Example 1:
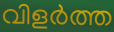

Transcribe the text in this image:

വിളർത്ത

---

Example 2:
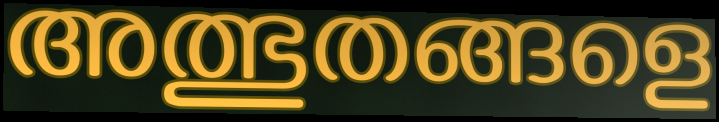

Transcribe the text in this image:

അത്ഭുതങ്ങളെ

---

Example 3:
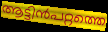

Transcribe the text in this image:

ആട്ടിൻപറ്റത്തെ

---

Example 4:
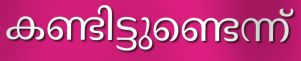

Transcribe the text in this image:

കണ്ടിട്ടുണ്ടെന്ന്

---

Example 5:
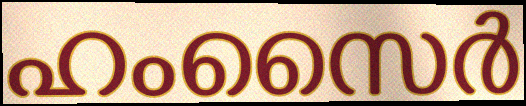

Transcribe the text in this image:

ഹംസൈർ